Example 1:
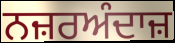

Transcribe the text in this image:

ਨਜ਼ਰਅੰਦਾਜ਼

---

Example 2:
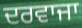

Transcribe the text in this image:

ਦਰਵਾਜਾ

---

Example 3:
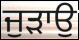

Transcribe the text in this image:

ਜੁੜਾਉ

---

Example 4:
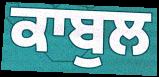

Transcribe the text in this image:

ਕਾਬੁਲ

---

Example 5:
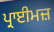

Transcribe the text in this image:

ਪ੍ਰਾਈਮਜ਼